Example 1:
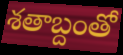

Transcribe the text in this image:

శతాబ్దంతో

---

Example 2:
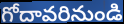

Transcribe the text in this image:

గోదావరినుండి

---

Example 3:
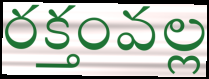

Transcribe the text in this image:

రక్తంవల్ల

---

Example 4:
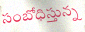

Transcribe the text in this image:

సంబోధిస్తున్న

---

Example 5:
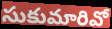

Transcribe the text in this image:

సుకుమారివో